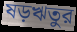
ষড়ঋতুর